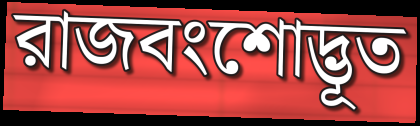
রাজবংশোদ্ভূত